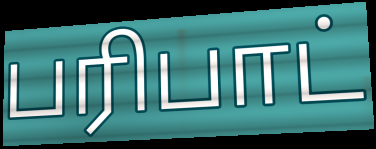
பரிபாட்